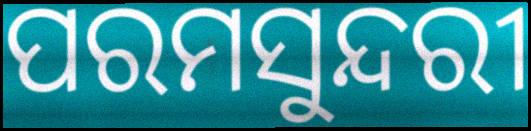
ପରମସୁନ୍ଦରୀ